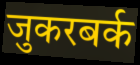
जुकरबर्क